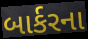
બાર્કરના